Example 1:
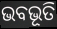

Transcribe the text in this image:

ଭବଭୂତି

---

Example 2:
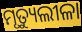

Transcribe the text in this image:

ମୃତ୍ୟୁଲୀଳା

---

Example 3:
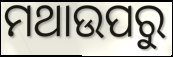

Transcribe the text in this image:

ମଥାଉପରୁ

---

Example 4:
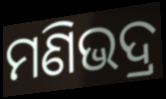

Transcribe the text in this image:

ମଣିଭଦ୍ର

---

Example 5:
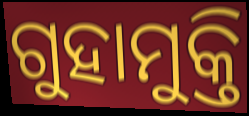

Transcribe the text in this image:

ଗୁହାମୁକ୍ତି